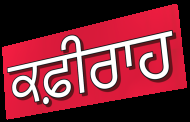
ਕਫ਼ੀਰਾਹ